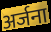
अर्जना